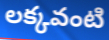
లక్కవంటి